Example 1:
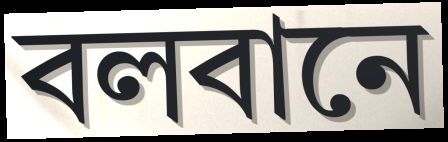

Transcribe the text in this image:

বলবানে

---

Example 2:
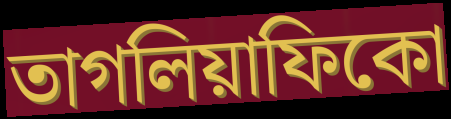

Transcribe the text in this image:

তাগলিয়াফিকো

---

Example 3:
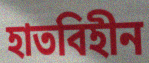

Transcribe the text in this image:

হাতবিহীন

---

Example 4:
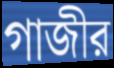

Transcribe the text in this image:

গাজীর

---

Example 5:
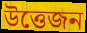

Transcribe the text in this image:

উত্তেজন